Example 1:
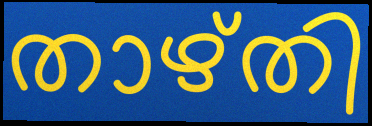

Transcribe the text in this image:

താഴ്തി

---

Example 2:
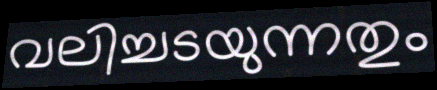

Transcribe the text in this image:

വലിച്ചടയുന്നതും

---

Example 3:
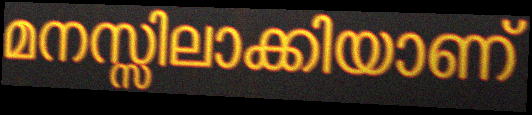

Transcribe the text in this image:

മനസ്സിലാക്കിയാണ്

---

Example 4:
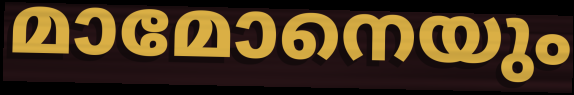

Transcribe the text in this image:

മാമോനെയും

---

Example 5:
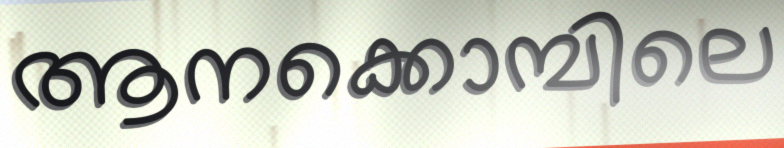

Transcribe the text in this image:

ആനക്കൊമ്പിലെ